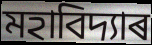
মহাবিদ্যাৰ